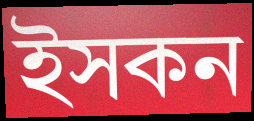
ইসকন